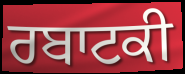
ਰਬਾਟਕੀ